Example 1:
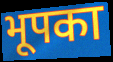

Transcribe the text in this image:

भूपका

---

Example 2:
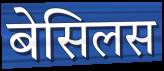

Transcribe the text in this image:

बेसिलस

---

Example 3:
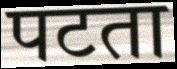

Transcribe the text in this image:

पटता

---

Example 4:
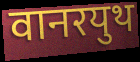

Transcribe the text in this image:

वानरयुथ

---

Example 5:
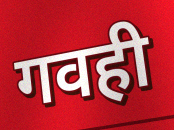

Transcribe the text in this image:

गवही